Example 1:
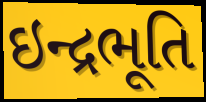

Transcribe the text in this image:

ઇન્દ્રભૂતિ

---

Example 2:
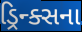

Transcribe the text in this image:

ડ્રિન્ક્સના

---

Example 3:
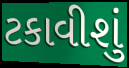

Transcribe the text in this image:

ટકાવીશું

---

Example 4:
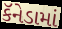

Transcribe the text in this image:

કૅનેડામાં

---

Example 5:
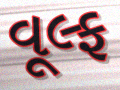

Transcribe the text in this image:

વૂલ્ફ